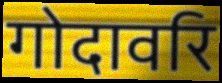
गोदावरि